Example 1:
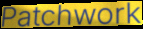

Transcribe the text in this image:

Patchwork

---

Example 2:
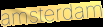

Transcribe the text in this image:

amsterdam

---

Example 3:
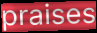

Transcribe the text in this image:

praises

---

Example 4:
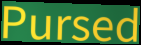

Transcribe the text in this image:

Pursed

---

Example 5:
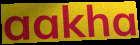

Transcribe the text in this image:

aakha